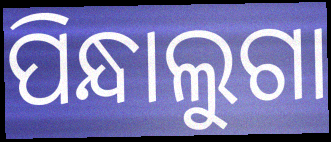
ପିନ୍ଧାଲୁଗା